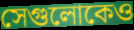
সেগুলোকেও